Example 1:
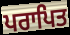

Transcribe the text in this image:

ਪਰਾਪਿਤ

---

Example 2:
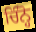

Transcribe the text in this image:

ਚਿੰਨ੍ਹੋ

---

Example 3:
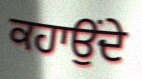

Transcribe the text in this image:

ਕਹਾਉਂਦੇ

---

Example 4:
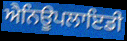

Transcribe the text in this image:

ਐਨਿਊਪਲਾਇਡੀ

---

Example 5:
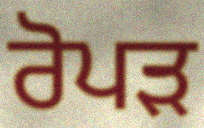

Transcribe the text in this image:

ਰੋਪੜ